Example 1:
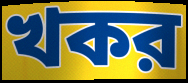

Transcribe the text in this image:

খকর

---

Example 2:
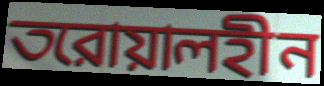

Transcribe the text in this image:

তরোয়ালহীন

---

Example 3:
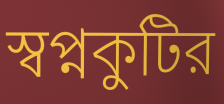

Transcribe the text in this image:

স্বপ্নকুটির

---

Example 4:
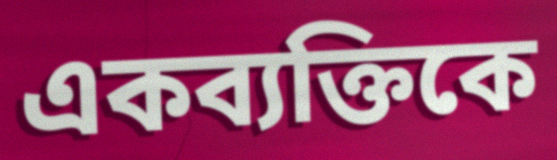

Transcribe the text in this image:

একব্যক্তিকে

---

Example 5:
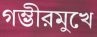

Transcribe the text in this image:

গম্ভীরমুখে